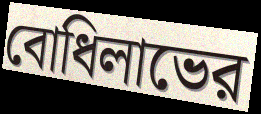
বোধিলাভের